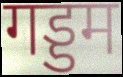
गड्डम